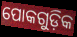
ପୋକଗୁଡ଼ିକ